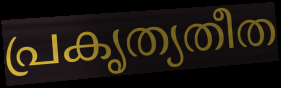
പ്രകൃത്യതീത